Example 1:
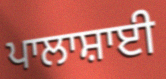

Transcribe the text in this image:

ਪਾਲਾਸ਼ਾਈ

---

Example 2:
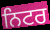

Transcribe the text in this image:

ਨਿਟਰ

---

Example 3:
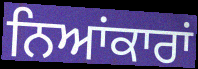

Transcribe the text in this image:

ਨਿਆਂਕਾਰਾਂ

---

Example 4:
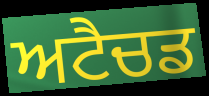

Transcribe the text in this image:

ਅਟੈਚਡ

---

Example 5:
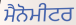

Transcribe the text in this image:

ਮੈਨੋਮੀਟਰ